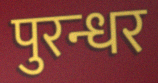
पुरन्धर